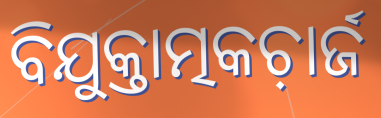
ବିଯୁକ୍ତାତ୍ମକଚ଼ାର୍ଜ